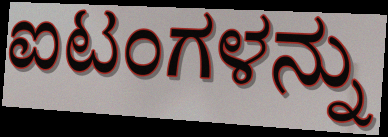
ಐಟಂಗಳನ್ನು